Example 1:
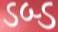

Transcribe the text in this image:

ડબ્ડ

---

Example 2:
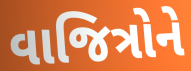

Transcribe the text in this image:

વાજિત્રોને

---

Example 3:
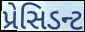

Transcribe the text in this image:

પ્રેસિડન્ટ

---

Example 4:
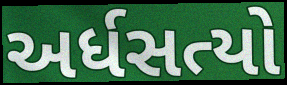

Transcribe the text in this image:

અર્ધસત્યો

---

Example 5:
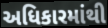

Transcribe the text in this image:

અધિકારમાંથી